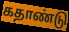
கதாண்டு